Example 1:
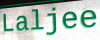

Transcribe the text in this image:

Laljee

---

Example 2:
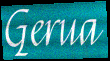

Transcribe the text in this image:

Gerua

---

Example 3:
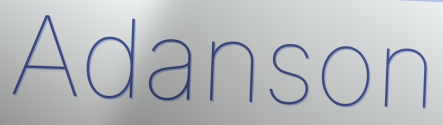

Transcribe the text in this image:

Adanson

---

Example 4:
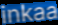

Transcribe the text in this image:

inkaa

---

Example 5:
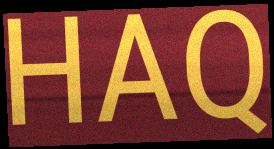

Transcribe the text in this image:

HAQ